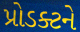
પ્રોડક્ટને